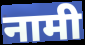
नामी